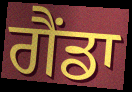
ਗੈਂਡਾ